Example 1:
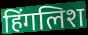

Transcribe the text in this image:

हिंगलिश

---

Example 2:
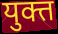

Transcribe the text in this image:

युक्त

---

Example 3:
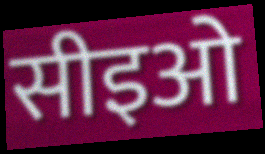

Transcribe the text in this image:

सीइओ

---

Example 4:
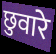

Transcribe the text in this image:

छुवारे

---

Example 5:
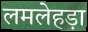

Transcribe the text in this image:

लमलेहड़ा